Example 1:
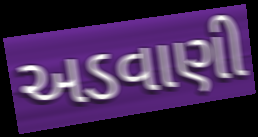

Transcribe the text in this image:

અડવાણી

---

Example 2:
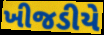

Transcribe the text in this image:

ખીજડીયે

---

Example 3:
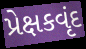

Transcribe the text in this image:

પ્રેક્ષકવૃંદ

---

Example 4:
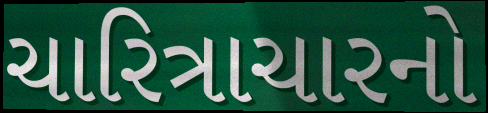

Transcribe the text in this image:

ચારિત્રાચારનો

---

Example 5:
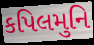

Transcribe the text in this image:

કપિલમુનિ